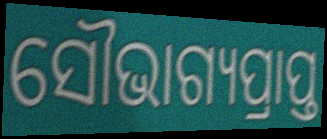
ସୌଭାଗ୍ୟପ୍ରାପ୍ତ